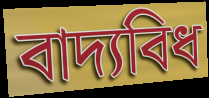
বাদ্যবিধ